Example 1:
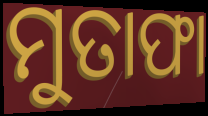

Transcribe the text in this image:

ମୁତାଫା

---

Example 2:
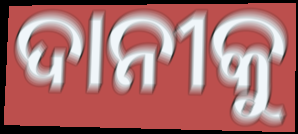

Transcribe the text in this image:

ଦାନୀକୁ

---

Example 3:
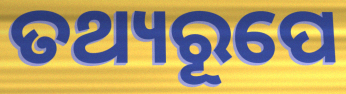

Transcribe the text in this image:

ତଥ୍ୟରୂପେ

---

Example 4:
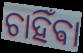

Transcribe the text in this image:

ଚାହିଁଵା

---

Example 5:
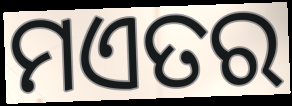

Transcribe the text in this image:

ମଏତର